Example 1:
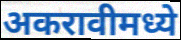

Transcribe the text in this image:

अकरावीमध्ये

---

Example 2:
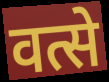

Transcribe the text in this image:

वत्से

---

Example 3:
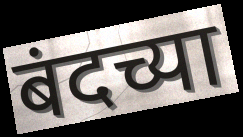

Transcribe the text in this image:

बंदच्या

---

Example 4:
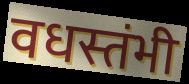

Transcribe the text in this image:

वधस्तंभी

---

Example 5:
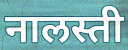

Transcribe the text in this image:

नालस्ती